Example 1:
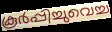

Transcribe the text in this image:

കൂർപ്പിച്ചുവെച്ച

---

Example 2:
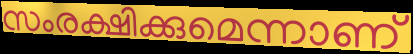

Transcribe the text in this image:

സംരക്ഷിക്കുമെന്നാണ്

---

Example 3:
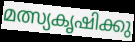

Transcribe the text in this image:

മത്സ്യകൃഷിക്കു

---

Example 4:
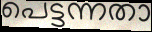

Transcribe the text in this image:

പെട്ടന്നതാ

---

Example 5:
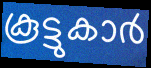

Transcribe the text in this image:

കൂട്ടുകാർ